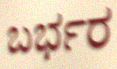
ಬರ್ಭರ